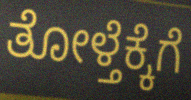
ತೋಳ್ತೆಕ್ಕೆಗೆ